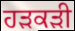
ਹੜਕੜੀ